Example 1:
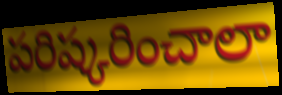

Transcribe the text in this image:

పరిష్కరించాలా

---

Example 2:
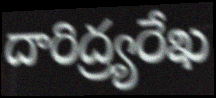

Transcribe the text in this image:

దారిద్ర్యరేఖ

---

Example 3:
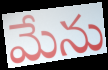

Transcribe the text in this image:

మేను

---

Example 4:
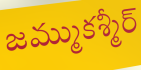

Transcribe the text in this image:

జమ్ముకశ్మీర్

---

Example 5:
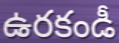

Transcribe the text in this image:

ఉరకండీ